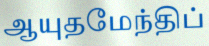
ஆயுதமேந்திப்